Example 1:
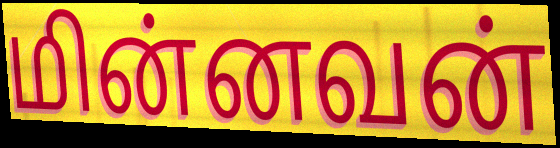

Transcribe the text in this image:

மின்னவன்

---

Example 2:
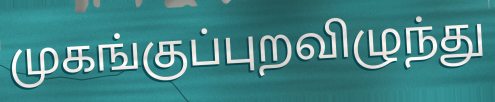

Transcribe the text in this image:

முகங்குப்புறவிழுந்து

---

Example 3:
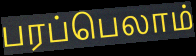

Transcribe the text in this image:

பரப்பெலாம்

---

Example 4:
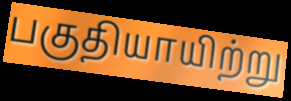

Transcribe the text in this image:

பகுதியாயிற்று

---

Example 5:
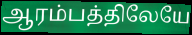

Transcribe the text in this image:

ஆரம்பத்திலேயே